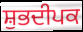
ਸ਼ੁਭਦੀਪਕ